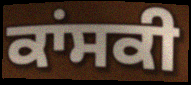
ਕਾਂਸਕੀ